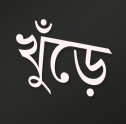
খুঁড়ে